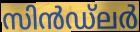
സിൻഡ്ലർ